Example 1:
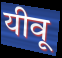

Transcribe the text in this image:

यीवू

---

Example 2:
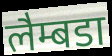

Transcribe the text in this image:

लैम्बडा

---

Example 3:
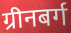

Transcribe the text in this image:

ग्रीनबर्ग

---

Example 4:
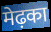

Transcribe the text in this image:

मेढ़का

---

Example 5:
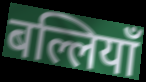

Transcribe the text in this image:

बल्लियाँ